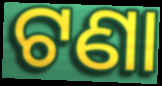
ଟଣା